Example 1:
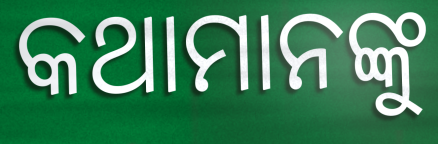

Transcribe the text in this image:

କଥାମାନଙ୍କୁ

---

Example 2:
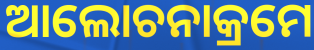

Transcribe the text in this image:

ଆଲୋଚନାକ୍ରମେ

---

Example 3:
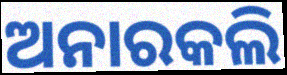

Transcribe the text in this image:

ଅନାରକଲି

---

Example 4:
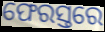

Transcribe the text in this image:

ଫେରସ୍ତରେ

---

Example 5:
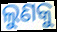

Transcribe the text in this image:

ଲୁଣକୁ